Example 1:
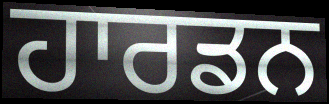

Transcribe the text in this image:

ਹਾਰਡਨ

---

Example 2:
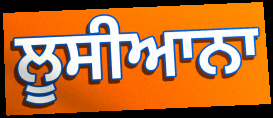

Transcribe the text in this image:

ਲੂਸੀਆਨਾ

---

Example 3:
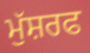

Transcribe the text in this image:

ਮੁੱਸ਼ਰਫ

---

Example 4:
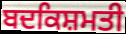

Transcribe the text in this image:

ਬਦਕਿਸ਼ਮਤੀ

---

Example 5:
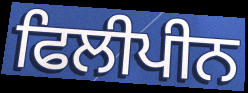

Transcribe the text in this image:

ਫਿਲੀਪੀਨ